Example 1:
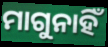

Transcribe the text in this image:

ମାଗୁନାହିଁ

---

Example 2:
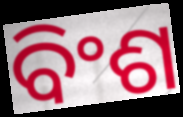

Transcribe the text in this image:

ବିଂଶ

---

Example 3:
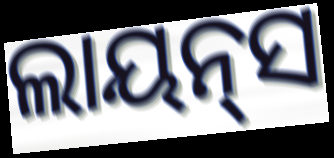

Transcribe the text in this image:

ଲାୟନ୍‌ସ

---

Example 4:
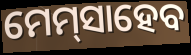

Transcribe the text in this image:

ମେମ୍‌ସାହେବ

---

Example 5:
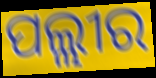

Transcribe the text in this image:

ପଲ୍ଲୀର